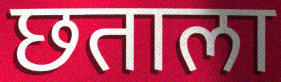
छताला